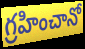
గ్రహించానో